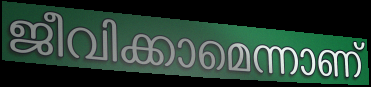
ജീവിക്കാമെന്നാണ്